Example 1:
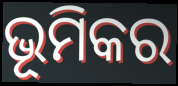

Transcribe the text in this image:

ଭୂମିକର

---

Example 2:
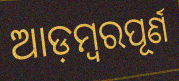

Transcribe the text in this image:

ଆଡ଼ମ୍ବରପୂର୍ଣ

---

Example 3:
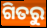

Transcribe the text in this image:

ଗିତରୁ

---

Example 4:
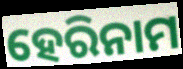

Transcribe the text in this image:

ହେରିନାମ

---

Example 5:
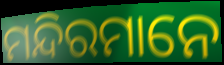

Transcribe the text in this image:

ମନ୍ଦିରମାନେ